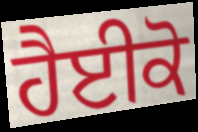
ਹੈਈਕੋ